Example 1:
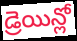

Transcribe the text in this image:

డ్రెయిన్లో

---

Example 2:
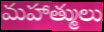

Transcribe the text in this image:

మహాత్ములు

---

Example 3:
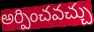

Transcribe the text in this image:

అర్పించవచ్చు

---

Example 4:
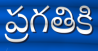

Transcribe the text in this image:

ప్రగతికి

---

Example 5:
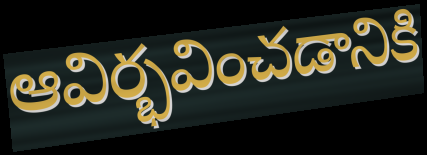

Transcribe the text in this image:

ఆవిర్భవించడానికి